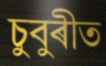
চুবুৰীত